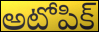
అటోపిక్